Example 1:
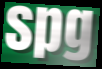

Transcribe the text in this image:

spg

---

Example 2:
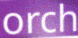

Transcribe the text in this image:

orch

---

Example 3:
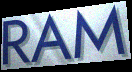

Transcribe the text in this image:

RAM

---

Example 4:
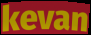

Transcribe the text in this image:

kevan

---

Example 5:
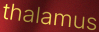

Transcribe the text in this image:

thalamus